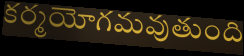
కర్మయోగమవుతుంది